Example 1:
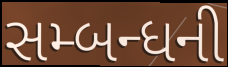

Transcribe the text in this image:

સમ્બન્ધની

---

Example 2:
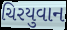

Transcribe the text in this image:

ચિરયુવાન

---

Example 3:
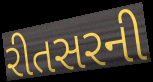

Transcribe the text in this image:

રીતસરની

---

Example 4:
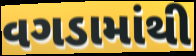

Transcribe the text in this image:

વગડામાંથી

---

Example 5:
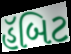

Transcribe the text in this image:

હૅબિટ